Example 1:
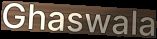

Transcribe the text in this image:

Ghaswala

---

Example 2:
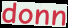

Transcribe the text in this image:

donn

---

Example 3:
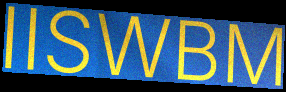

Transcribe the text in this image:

IISWBM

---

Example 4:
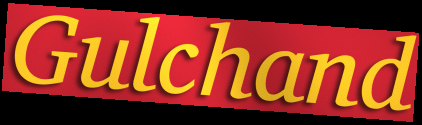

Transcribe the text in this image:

Gulchand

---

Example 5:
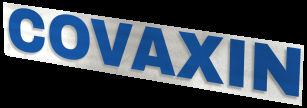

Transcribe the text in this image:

COVAXIN